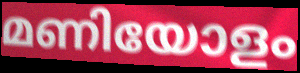
മണിയോളം